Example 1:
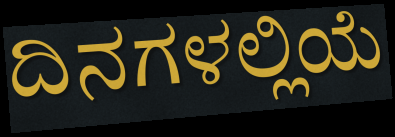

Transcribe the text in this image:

ದಿನಗಳಲ್ಲಿಯೆ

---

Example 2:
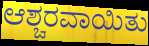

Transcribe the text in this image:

ಆಶ್ಚರವಾಯಿತು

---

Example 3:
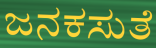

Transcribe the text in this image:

ಜನಕಸುತೆ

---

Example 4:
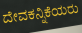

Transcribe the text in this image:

ದೇವಕನ್ನಿಕೆಯರು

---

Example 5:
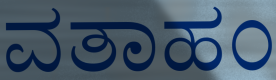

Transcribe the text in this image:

ವತಾಹಂ